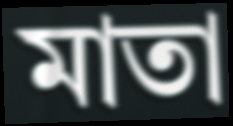
মাতা